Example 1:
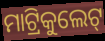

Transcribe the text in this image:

ମାଟ୍ରିକୁଲେଟ୍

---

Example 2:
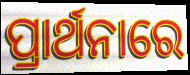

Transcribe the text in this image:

ପ୍ରାର୍ଥନାରେ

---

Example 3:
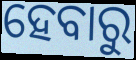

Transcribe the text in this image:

ହେବାରୁ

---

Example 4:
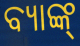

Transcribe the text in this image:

ବ୍ୟାଙ୍କ୍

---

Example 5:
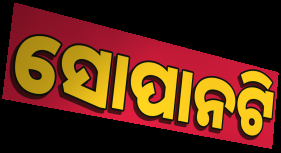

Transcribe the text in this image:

ସୋପାନଟି